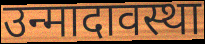
उन्मादावस्था